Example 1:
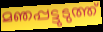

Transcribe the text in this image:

മഞപ്പട്ടുടുത്ത്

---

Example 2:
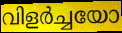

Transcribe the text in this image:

വിളർച്ചയോ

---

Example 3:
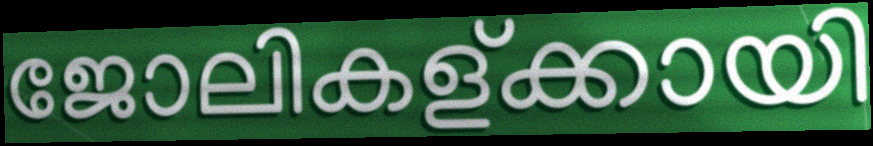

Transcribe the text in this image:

ജോലികള്ക്കായി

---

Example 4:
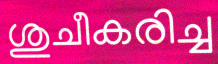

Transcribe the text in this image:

ശുചീകരിച്ച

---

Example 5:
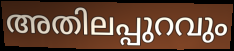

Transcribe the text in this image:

അതിലപ്പുറവും